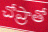
చోప్రాతో